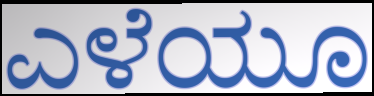
ಎಳೆಯೂ